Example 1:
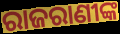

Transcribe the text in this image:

ରାଜରାଣୀଙ୍କ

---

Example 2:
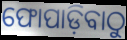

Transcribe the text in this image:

ଫୋପାଡ଼ିବାଠୁ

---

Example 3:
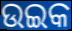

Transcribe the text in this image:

ଉଇକ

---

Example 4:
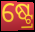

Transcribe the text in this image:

ଷ୍ଟ୍ରେ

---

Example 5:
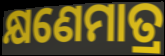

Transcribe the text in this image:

କ୍ଷଣେମାତ୍ର